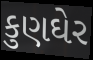
કુણઘેર